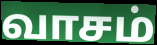
வாசம்